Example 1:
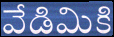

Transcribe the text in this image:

వేడిమికి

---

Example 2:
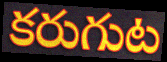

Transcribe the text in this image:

కరుగుట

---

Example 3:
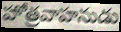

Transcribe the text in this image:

హోత్రవాహనుడు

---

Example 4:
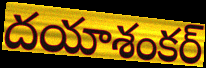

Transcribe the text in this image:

దయాశంకర్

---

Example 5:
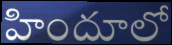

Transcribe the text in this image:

హిందూలో